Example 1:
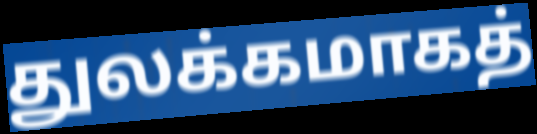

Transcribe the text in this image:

துலக்கமாகத்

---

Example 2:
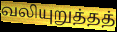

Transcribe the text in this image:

வலியுறுத்தத்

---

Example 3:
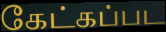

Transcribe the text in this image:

கேட்கப்பட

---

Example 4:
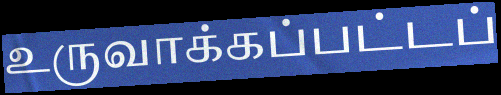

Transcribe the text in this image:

உருவாக்கப்பட்டப்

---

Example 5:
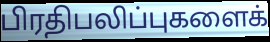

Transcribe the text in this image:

பிரதிபலிப்புகளைக்